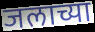
जलाच्या